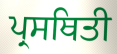
ਪ੍ਰਸਥਿਤੀ